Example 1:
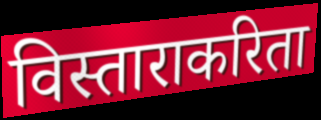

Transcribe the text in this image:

विस्ताराकरिता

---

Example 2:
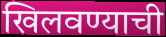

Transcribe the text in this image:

खिलवण्याची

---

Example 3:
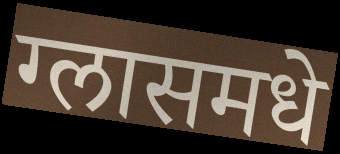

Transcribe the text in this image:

ग्लासमधे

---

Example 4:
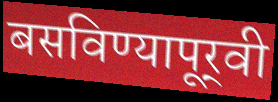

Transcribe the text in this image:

बसविण्यापूर्वी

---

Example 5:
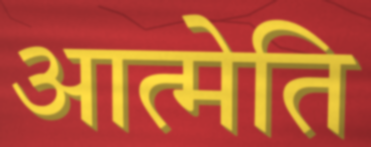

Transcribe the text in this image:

आत्मेति